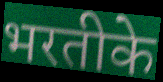
भरतीके